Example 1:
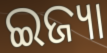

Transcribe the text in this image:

ଇଜ୍ୟା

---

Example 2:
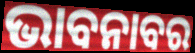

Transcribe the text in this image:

ଭାବନାବର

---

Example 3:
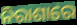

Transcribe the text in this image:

ନିରାଶାରେ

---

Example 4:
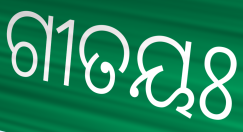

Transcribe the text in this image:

ଗୀତୟଃ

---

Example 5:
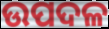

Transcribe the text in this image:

ଉପଦଳ